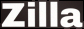
Zilla